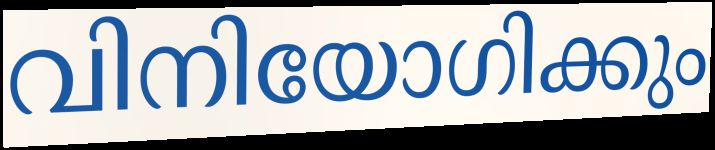
വിനിയോഗിക്കും